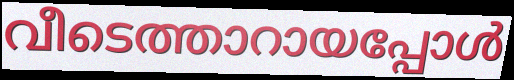
വീടെത്താറായപ്പോൾ